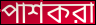
পাশকরা